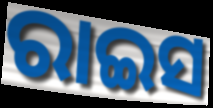
ରାଇସ